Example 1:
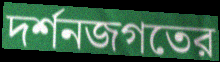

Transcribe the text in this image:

দর্শনজগতের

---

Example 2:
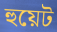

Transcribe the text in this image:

হুয়েট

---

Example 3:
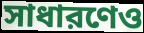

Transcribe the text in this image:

সাধারণেও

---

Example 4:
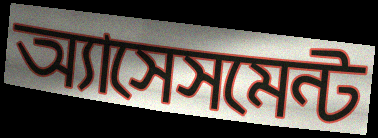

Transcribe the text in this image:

অ্যাসেসমেন্ট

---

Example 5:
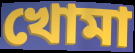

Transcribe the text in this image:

খোমা